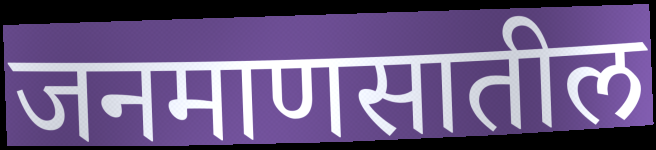
जनमाणसातील